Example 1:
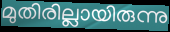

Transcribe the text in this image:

മുതിരില്ലായിരുന്നു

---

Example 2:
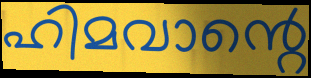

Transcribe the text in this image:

ഹിമവാന്റെ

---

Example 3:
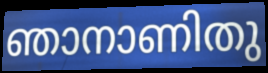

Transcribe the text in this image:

ഞാനാണിതു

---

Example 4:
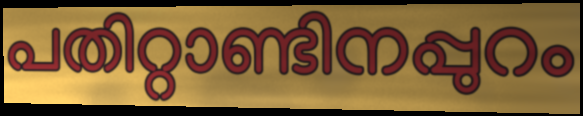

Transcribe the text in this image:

പതിറ്റാണ്ടിനപ്പുറം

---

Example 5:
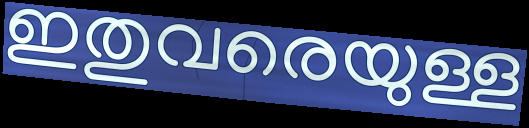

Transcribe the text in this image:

ഇതുവരെയുള്ള